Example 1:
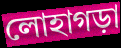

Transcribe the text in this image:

লোহাগড়া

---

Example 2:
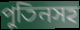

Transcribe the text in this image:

পুতিনসহ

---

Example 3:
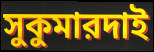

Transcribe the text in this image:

সুকুমারদাই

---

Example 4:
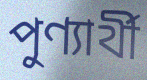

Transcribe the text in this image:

পুণ্যার্থী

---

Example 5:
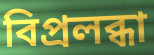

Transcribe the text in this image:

বিপ্রলব্ধা